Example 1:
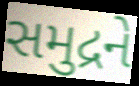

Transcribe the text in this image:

સમુદ્રને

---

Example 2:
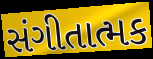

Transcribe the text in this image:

સંગીતાત્મક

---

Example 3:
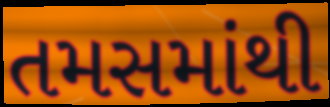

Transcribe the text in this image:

તમસમાંથી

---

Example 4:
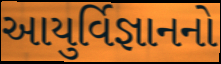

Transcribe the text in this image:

આયુર્વિજ્ઞાનનો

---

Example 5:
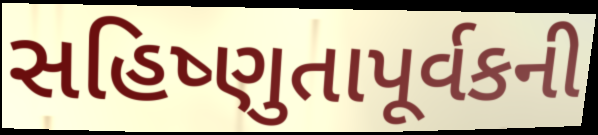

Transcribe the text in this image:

સહિષ્ણુતાપૂર્વકની